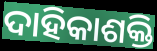
ଦାହିକାଶକ୍ତି